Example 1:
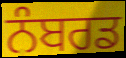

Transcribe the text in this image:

ਨੰਬਰਡ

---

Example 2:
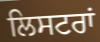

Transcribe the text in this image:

ਲਿਸਟਰਾਂ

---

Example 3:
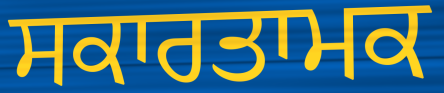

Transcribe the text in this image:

ਸਕਾਰਤਾਮਕ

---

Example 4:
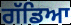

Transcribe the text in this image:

ਗੱਡਿਆ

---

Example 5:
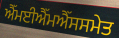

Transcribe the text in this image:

ਐੱਮਈਐੱਮਐੱਸਸਮੇਤ